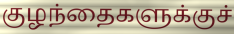
குழந்தைகளுக்குச்